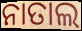
ନାତାଲ